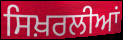
ਸਿਖ਼ਰਲੀਆਂ